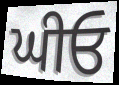
ਘੀਓ